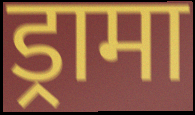
ड्रामा